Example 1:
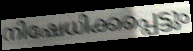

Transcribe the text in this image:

നിഷേധിക്കപ്പെട്ടും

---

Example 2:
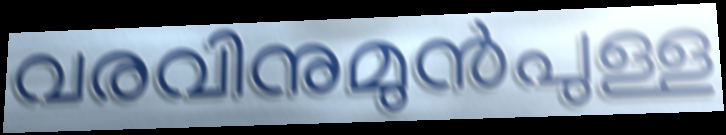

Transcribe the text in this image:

വരവിനുമുൻപുള്ള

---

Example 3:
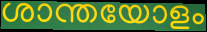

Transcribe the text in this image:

ശാന്തയോളം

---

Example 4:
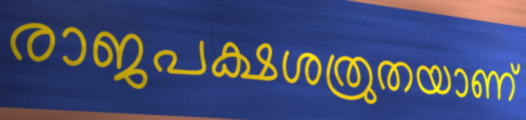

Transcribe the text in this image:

രാജപക്ഷശത്രുതയാണ്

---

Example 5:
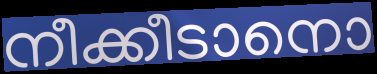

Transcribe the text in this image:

നീക്കീടാനൊ